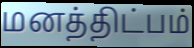
மனத்திட்பம்